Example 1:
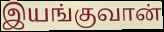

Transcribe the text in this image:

இயங்குவான்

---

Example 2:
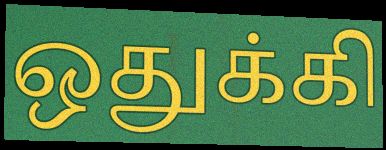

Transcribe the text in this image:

ஒதுக்கி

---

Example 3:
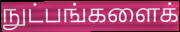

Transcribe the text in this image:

நுட்பங்களைக்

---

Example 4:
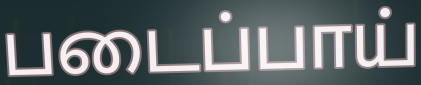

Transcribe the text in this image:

படைப்பாய்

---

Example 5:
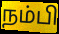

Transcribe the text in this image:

நம்பி